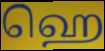
ஹெ